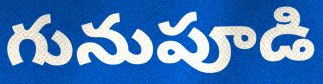
గునుపూడి